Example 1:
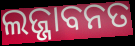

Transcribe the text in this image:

ଲଜ୍ଜାବନତ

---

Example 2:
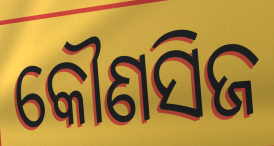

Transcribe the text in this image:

କୌଣସିଜ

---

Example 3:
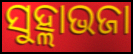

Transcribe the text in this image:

ସୁହ୍ଲାଭଜା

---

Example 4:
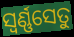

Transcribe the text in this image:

ସ୍ଵର୍ଣ୍ଣସେତୁ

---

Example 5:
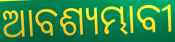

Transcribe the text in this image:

ଆବଶ୍ୟମ୍ଭାବୀ